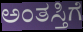
ಅಂತಸ್ತಿಗೆ